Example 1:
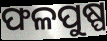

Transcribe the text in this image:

ଫଳପୁଷ୍ପ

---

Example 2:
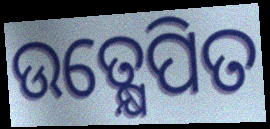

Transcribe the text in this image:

ଉତ୍କ୍ଷେପିତ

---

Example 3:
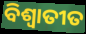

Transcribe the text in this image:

ବିଶ୍ଵାତୀତ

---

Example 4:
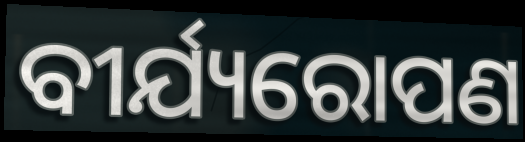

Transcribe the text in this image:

ବୀର୍ଯ୍ୟରୋପଣ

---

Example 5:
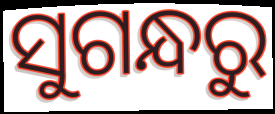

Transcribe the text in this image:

ସୁଗନ୍ଧରୁ